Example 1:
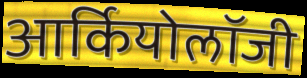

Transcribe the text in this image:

आर्कियोलॉजी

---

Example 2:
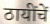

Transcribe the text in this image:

ठायींचें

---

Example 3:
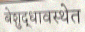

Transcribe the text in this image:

बेशुद्धावस्थेत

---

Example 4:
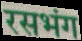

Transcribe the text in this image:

रसभंग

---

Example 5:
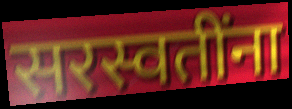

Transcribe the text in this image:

सरस्वतींना